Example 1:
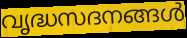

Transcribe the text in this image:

വൃദ്ധസദനങ്ങൾ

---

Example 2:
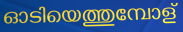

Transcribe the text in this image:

ഓടിയെത്തുമ്പോള്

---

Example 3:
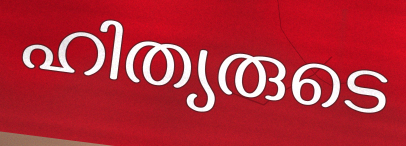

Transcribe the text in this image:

ഹിത്യരുടെ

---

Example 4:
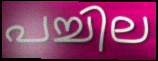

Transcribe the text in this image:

പച്ചില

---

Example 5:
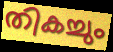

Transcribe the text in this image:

തികച്ചും